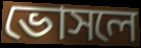
ভোসলে